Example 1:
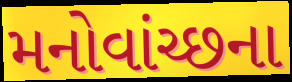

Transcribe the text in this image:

મનોવાંચ્છના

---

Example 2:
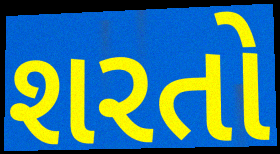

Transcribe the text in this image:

શરતો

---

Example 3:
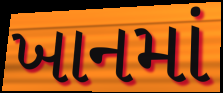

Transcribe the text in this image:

ખાનમાં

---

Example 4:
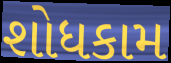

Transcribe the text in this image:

શોધકામ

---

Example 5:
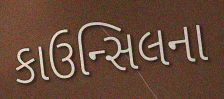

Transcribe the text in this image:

કાઉન્સિલના